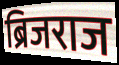
ब्रिजराज